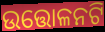
ଉତ୍ତୋଳନଟି